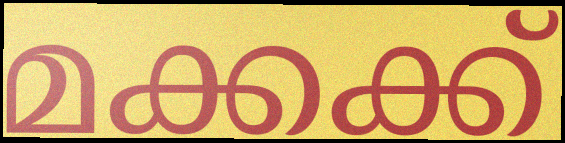
മക്കക്ക്